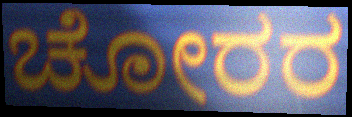
ಚೋರರ